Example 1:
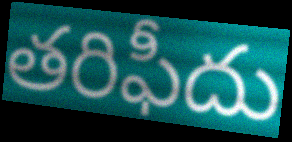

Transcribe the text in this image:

తరిఫీదు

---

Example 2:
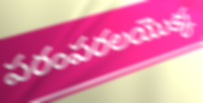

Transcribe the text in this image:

పరంపరలయొక్క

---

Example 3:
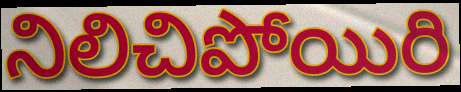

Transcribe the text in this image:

నిలిచిపోయిరి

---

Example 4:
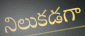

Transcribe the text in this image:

నిలుకడగా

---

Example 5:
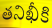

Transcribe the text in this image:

తనిఖీకి